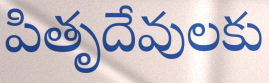
పితృదేవులకు